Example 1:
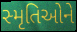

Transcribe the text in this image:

સ્મૃતિઓને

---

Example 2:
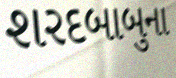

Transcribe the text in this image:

શરદબાબુના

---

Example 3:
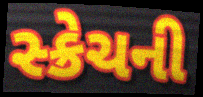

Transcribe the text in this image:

સ્ક્રેચની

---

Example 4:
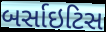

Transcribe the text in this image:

બર્સાઇટિસ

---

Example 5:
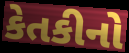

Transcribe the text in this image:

કેતકીનો